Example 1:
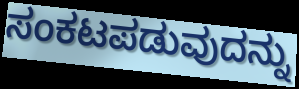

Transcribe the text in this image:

ಸಂಕಟಪಡುವುದನ್ನು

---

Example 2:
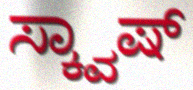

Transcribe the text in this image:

ಸ್ಕ್ವಾಷ್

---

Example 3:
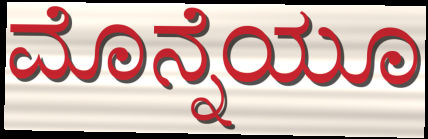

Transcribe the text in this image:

ಮೊನ್ನೆಯೂ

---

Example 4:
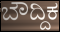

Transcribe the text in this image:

ಬೌದ್ದಿಕ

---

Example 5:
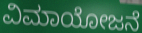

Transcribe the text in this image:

ವಿಮಾಯೋಜನೆ